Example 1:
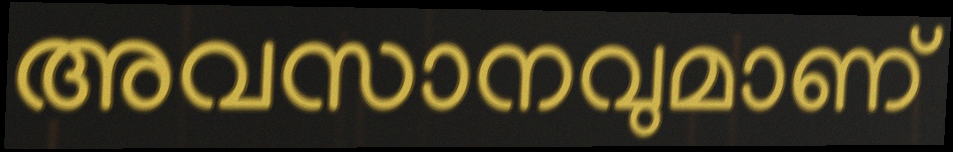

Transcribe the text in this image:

അവസാനവുമാണ്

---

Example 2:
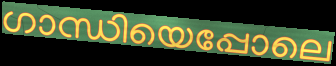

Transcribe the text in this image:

ഗാന്ധിയെപ്പോലെ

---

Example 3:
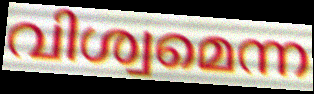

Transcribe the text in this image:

വിശ്വമെന്ന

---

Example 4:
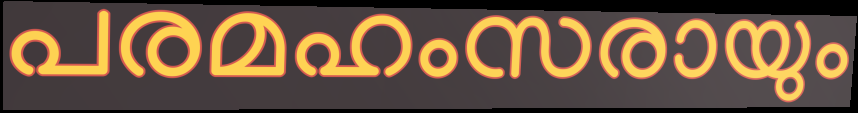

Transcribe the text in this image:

പരമഹംസരായും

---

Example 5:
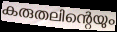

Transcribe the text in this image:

കരുതലിന്റെയും